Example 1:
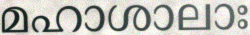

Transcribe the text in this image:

മഹാശാലാഃ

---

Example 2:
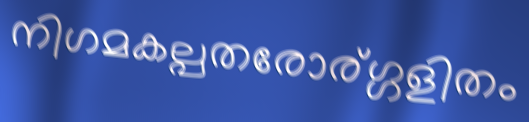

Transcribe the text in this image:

നിഗമകല്പതരോര്ഗ്ഗളിതം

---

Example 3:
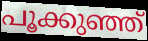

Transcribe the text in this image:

പൂക്കുഞ്ഞ്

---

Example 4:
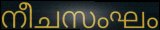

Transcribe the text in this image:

നീചസംഘം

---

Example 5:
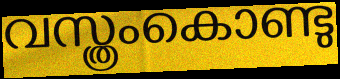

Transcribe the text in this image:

വസ്ത്രംകൊണ്ടു